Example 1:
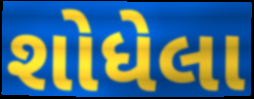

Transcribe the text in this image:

શોધેલા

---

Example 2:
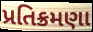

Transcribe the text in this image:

પ્રતિક્રમણા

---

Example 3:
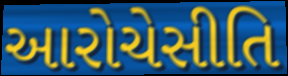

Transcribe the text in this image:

આરોચેસીતિ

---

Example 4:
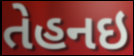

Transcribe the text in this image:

તેહનઇ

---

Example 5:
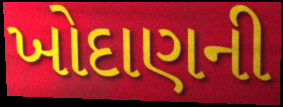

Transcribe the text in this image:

ખોદાણની